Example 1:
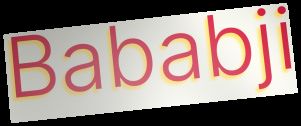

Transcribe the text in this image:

Bababji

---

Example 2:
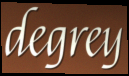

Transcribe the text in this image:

degrey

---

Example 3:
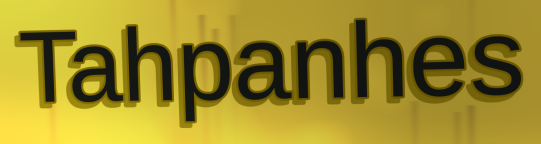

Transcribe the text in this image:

Tahpanhes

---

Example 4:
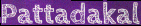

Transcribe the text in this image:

Pattadakal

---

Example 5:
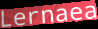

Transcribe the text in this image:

Lernaea